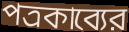
পত্রকাব্যের